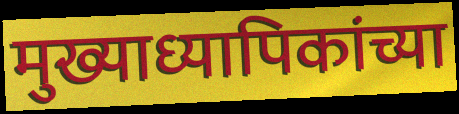
मुख्याध्यापिकांच्या